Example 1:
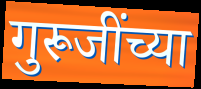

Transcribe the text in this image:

गुरूजींच्या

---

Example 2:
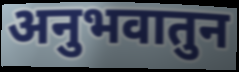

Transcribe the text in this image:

अनुभवातुन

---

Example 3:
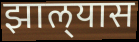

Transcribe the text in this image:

झाल्यास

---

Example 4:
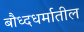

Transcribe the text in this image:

बौध्दधर्मातील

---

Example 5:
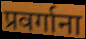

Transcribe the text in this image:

प्रवर्गाना